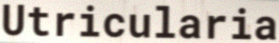
Utricularia